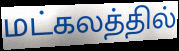
மட்கலத்தில்